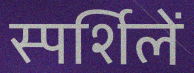
स्पर्शिलें